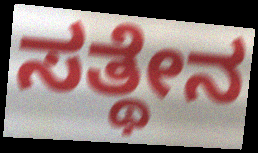
ಸತ್ಥೇನ